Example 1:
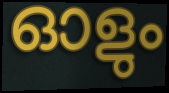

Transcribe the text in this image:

ഓളും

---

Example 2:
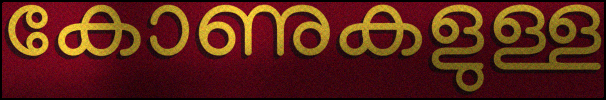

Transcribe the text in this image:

കോണുകളുള്ള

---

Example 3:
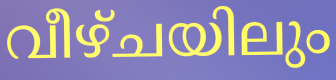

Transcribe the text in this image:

വീഴ്ചയിലും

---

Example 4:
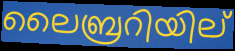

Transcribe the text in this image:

ലൈബ്രറിയില്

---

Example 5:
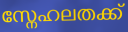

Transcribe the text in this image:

സ്നേഹലതക്ക്